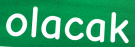
olacak